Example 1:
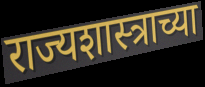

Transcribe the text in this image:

राज्यशास्त्राच्या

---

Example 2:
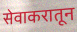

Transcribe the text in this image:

सेवाकरातून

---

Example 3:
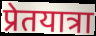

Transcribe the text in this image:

प्रेतयात्रा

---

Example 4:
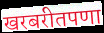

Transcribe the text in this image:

खरबरीतपणा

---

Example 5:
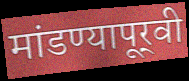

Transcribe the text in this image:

मांडण्यापूर्वी